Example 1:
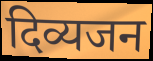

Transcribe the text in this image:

दिव्यजन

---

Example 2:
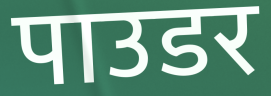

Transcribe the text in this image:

पाउडर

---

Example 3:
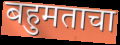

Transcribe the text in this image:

बहुमताचा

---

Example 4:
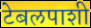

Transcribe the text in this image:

टेबलपाशी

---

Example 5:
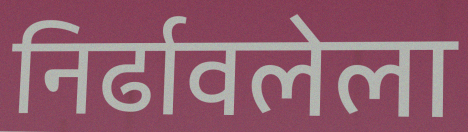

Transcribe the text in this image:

निर्ढावलेला